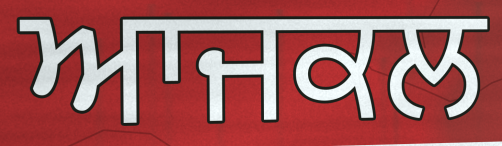
ਆਜਕਲ